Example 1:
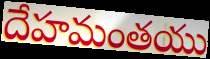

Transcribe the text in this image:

దేహమంతయు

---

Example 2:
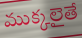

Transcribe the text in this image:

ముక్కలైతే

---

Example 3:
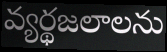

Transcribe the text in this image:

వ్యర్థజలాలను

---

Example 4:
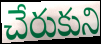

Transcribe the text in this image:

చేరుకుని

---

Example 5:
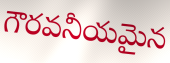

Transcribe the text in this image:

గౌరవనీయమైన